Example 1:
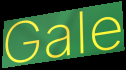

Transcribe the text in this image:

Gale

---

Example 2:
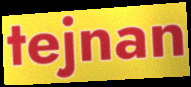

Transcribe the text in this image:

tejnan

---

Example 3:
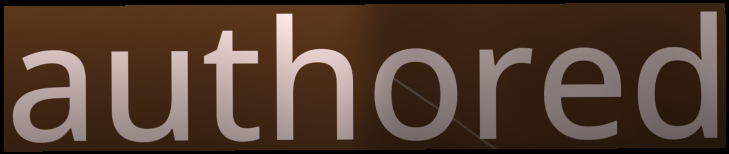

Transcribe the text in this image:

authored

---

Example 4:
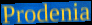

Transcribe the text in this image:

Prodenia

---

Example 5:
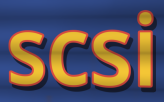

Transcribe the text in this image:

scsi